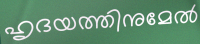
ഹൃദയത്തിനുമേൽ